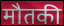
मौतकी